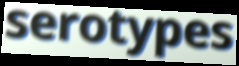
serotypes